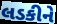
લડકીને